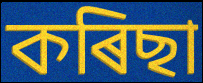
কৰিছা